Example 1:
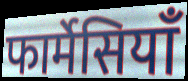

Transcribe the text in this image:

फार्मेसियाँ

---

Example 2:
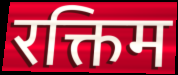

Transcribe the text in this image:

रक्तिम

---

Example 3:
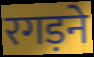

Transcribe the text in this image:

रगड़ने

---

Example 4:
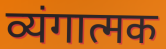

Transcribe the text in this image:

व्यंगात्मक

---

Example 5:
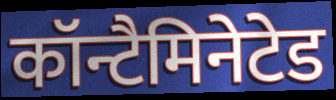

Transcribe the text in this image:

कॉन्टैमिनेटेड